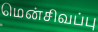
மென்சிவப்பு